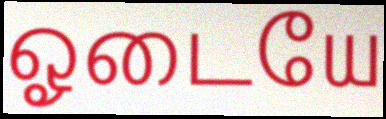
ஓடையே